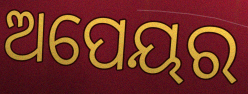
ଅପେୟର